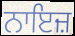
ਨਾਇਜ਼